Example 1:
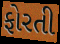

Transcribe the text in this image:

ફોરતી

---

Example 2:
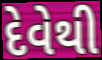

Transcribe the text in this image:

દેવેથી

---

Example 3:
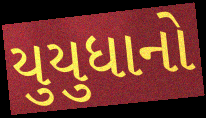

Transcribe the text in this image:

યુયુધાનો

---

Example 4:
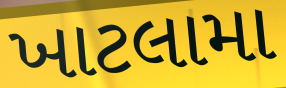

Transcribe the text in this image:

ખાટલામા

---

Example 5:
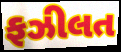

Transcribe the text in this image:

ફઝીલત